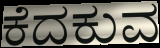
ಕೆದಕುವ